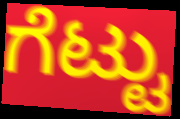
ಗೆಟ್ಟು